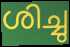
ശിച്ചു